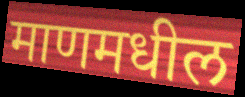
माणमधील